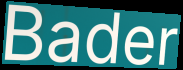
Bader